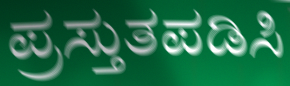
ಪ್ರಸ್ತುತಪಡಿಸಿ